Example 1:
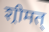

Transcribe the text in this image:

श्रीमत्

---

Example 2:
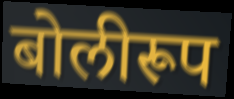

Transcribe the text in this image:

बोलीरूप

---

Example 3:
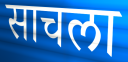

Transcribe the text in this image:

साचला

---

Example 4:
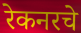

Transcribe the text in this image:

रेकनरचे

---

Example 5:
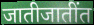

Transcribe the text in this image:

जातीजातींत